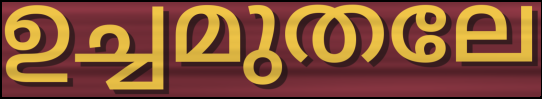
ഉച്ചമുതലേ